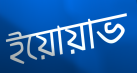
ইয়োয়াভ